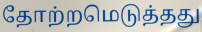
தோற்றமெடுத்தது